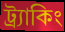
ট্র্যাকিং